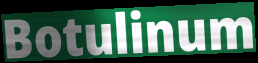
Botulinum